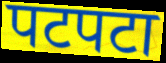
पटपटा